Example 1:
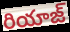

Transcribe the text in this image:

రియాజ్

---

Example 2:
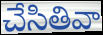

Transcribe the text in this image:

చేసితివా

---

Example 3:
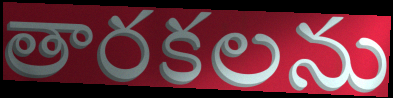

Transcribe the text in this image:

తారకలను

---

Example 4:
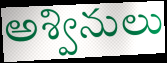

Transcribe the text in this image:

అశ్వినులు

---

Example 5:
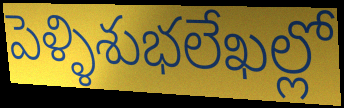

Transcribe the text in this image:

పెళ్ళిశుభలేఖల్లో